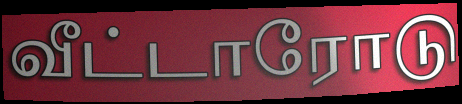
வீட்டாரோடு